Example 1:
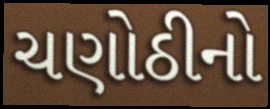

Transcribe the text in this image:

ચણોઠીનો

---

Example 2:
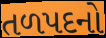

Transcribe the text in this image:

તળપદનો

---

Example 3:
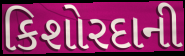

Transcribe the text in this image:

કિશોરદાની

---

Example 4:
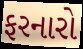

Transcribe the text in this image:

ફરનારો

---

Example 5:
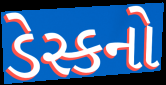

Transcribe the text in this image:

ડેસ્કનો